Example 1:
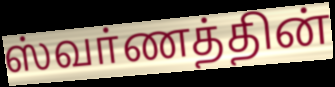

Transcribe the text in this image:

ஸ்வர்ணத்தின்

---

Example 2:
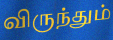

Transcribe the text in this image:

விருந்தும்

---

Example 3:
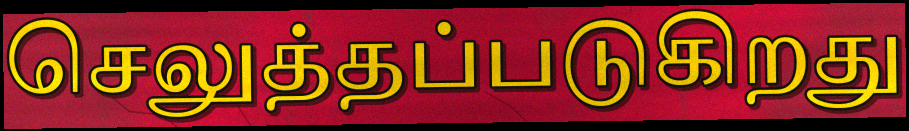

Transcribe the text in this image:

செலுத்தப்படுகிறது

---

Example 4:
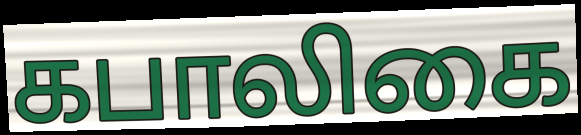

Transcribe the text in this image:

கபாலிகை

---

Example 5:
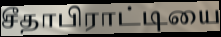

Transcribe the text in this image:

சீதாபிராட்டியை